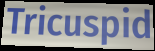
Tricuspid